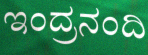
ಇಂದ್ರನಂದಿ